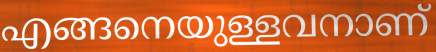
എങ്ങനെയുള്ളവനാണ്